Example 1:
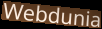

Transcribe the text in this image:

Webdunia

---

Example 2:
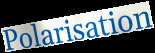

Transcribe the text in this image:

Polarisation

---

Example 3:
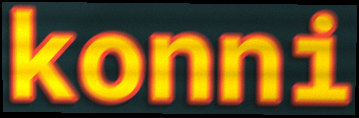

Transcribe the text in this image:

konni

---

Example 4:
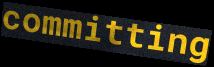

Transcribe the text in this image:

committing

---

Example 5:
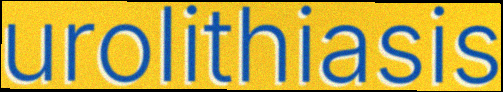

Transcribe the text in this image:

urolithiasis